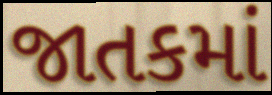
જાતકમાં